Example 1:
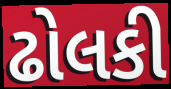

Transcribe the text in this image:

ઢોલકી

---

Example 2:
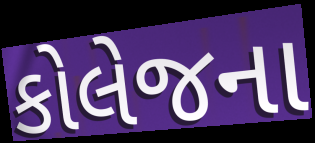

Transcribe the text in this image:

કોલેજના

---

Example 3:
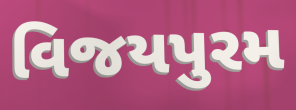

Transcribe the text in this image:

વિજયપુરમ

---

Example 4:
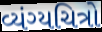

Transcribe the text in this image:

વ્યંગ્યચિત્રો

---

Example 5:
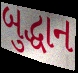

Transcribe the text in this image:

બુદ્ધાન